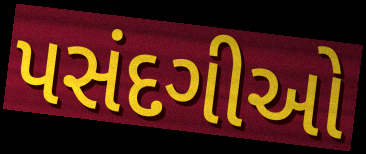
પસંદગીઓ